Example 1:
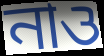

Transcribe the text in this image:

নাও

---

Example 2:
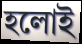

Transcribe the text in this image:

হলোই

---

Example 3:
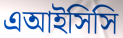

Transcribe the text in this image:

এআইসিসি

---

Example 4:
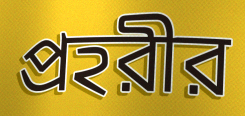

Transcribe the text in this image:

প্রহরীর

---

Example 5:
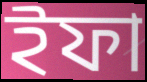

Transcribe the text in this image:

ইফা